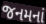
જનમનાં